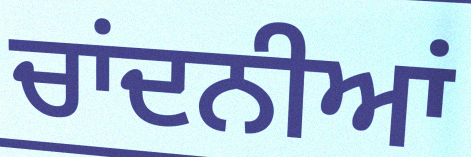
ਚਾਂਦਨੀਆਂ